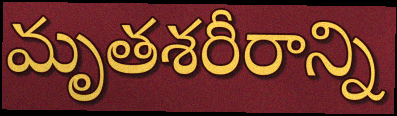
మృతశరీరాన్ని